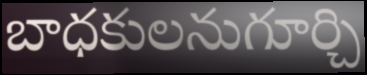
బాధకులనుగూర్చి